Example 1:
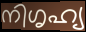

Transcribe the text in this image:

നിഗൃഹ്യ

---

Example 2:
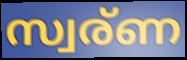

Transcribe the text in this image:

സ്വര്ണ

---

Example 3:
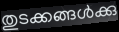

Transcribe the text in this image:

തുടക്കങ്ങൾക്കു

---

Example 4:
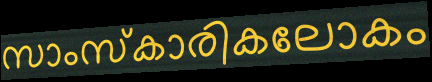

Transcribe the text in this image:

സാംസ്കാരികലോകം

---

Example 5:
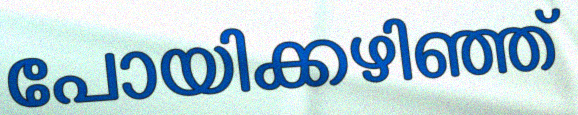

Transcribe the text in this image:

പോയിക്കഴിഞ്ഞ്